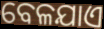
ବେଳଯାଏ